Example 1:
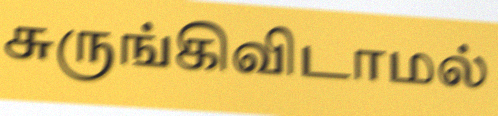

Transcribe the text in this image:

சுருங்கிவிடாமல்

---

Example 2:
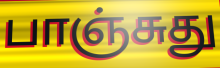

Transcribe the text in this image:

பாஞ்சுது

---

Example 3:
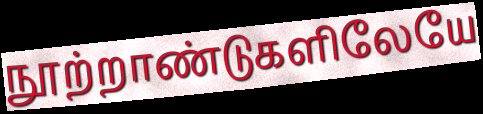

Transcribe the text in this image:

நூற்றாண்டுகளிலேயே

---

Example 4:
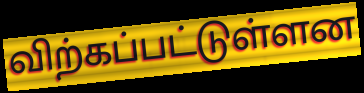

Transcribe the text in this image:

விற்கப்பட்டுள்ளன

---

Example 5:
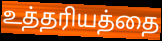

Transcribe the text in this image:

உத்தரியத்தை